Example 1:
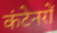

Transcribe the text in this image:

कंटेनरों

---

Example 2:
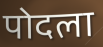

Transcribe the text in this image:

पोदला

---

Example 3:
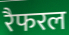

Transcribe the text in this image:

रैफरल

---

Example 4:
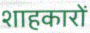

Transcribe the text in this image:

शाहकारों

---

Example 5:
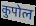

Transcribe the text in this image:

कुपोल